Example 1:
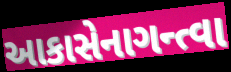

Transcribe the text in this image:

આકાસેનાગન્ત્વા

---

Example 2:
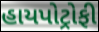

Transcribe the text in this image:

હાયપોટ્રોફી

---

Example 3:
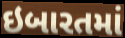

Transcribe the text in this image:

ઇબારતમાં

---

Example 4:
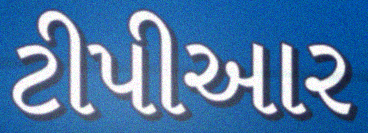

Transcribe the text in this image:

ટીપીઆર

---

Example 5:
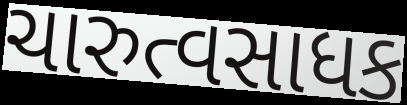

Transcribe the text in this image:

ચારુત્વસાધક